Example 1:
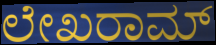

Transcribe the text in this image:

ಲೇಖರಾಮ್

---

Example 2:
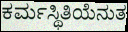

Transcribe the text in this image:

ಕರ್ಮಸ್ಥಿತಿಯೆನುತ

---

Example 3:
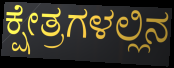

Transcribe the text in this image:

ಕ್ಷೇತ್ರಗಳಲ್ಲಿನ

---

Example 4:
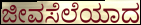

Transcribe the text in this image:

ಜೀವಸೆಲೆಯಾದ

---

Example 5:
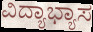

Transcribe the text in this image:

ವಿದ್ಯಾಭ್ಯಾಸ